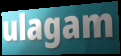
ulagam